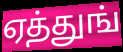
ஏத்துங்